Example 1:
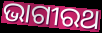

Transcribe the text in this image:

ଭାଗୀରଥ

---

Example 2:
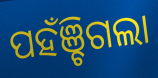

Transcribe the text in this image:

ପହଁଞ୍ଚିଗଲା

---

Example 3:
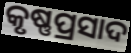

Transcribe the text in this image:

କୃଷ୍ଣପ୍ରସାଦ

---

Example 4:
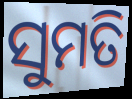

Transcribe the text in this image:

ସୁମତି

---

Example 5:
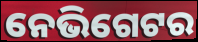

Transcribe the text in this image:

ନେଭିଗେଟର